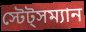
স্টেট্সম্যান